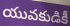
యువకుడికీ